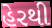
હેરથી